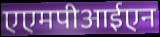
एएमपीआईएन